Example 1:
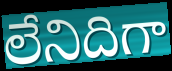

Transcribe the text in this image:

లేనిదిగా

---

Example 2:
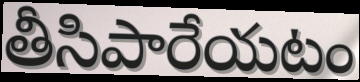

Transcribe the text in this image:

తీసిపారేయటం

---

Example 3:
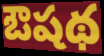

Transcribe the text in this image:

ఔషథ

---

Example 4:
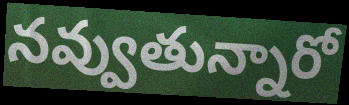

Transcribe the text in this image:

నవ్వుతున్నారో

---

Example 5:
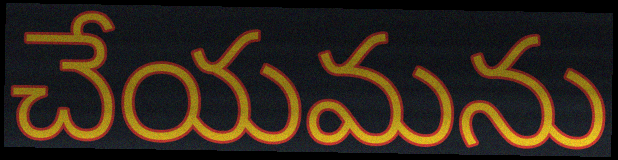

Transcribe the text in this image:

చేయమను